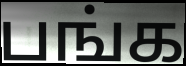
பங்க